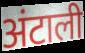
अंटाली